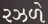
રઝળે